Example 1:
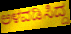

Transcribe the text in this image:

ಅಳವಡಿಸಿದ್ದ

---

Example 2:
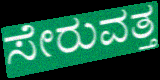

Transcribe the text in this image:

ಸೇರುವತ್ತ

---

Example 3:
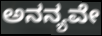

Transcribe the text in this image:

ಅನನ್ಯವೇ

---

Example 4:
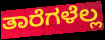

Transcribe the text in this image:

ತಾರೆಗಳೆಲ್ಲ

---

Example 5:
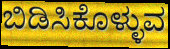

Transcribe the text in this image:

ಬಿಡಿಸಿಕೊಳ್ಳುವ